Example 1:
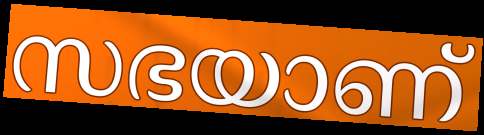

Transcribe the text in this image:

സഭയാണ്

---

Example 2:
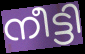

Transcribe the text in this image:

നീട്ടി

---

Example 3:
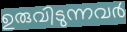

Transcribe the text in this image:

ഉരുവിടുന്നവർ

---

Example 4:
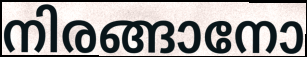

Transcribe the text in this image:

നിരങ്ങാനോ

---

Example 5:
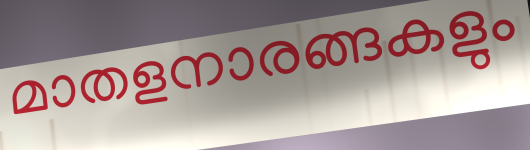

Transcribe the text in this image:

മാതളനാരങ്ങകളും